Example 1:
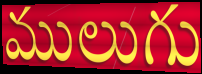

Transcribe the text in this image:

ములుగు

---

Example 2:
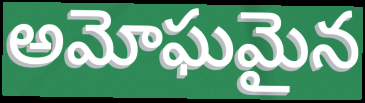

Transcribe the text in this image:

అమోఘమైన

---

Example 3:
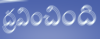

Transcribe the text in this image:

ద్రవించింది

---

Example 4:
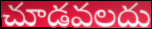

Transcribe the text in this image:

చూడవలదు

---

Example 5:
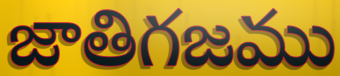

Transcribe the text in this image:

జాతిగజము